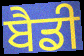
ਬੈਡੀ